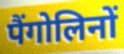
पैंगोलिनों